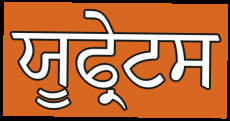
ਯੂਫ੍ਰੇਟਸ